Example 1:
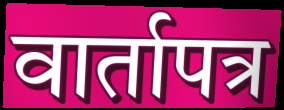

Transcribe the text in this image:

वार्तापत्र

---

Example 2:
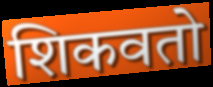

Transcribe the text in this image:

शिकवतो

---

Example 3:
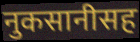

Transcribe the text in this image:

नुकसानीसह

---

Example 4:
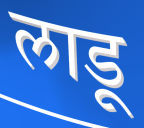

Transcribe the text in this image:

लाडू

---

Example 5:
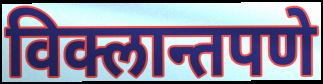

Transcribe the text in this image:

विक्लान्तपणे